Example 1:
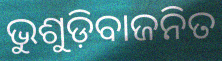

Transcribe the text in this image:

ଭୁଶୁଡ଼ିବାଜନିତ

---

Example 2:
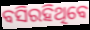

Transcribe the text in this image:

ବସିରହିଥିବେ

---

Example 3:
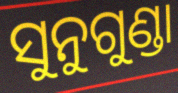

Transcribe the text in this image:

ସୁନୁଗୁଣ୍ଡା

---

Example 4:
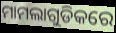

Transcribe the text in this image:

ମାମଲାଗୁଡିକରେ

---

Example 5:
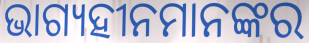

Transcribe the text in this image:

ଭାଗ୍ୟହୀନମାନଙ୍କର